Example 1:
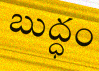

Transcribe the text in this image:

బుద్ధం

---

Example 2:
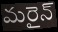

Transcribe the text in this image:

మరైన్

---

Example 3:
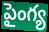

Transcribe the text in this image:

పైంగ్య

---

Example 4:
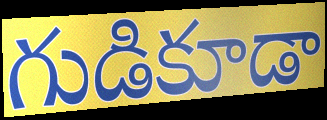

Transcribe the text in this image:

గుడికూడా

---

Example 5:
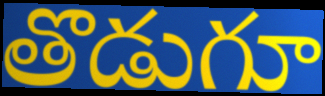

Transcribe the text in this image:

తొడుగూ